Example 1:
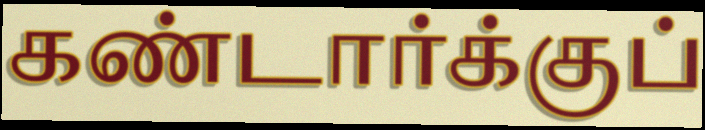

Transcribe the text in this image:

கண்டார்க்குப்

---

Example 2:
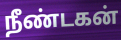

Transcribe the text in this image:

நீண்டகன்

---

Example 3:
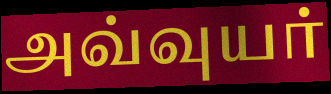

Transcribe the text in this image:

அவ்வுயர்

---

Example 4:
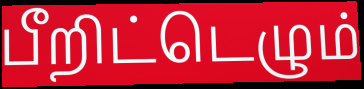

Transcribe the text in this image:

பீறிட்டெழும்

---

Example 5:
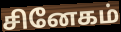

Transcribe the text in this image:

சினேகம்